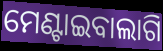
ମେଣ୍ଟାଇବାଲାଗି